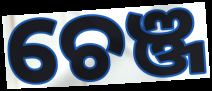
ଚେଞ୍ଜ